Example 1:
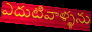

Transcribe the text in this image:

ఎదుటివాళ్ళను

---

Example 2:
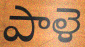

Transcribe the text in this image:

పాళె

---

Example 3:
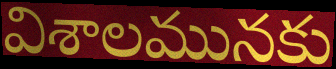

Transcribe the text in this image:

విశాలమునకు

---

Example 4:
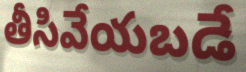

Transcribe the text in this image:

తీసివేయబడే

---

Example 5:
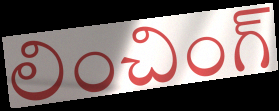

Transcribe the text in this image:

లించింగ్